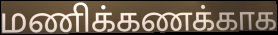
மணிக்கணக்காக